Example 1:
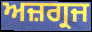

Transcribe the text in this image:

ਅਜ਼ਗ੍ਰਜ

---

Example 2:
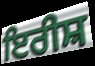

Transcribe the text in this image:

ਇਰੀਸ਼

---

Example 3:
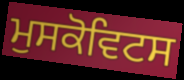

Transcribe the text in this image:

ਮੁਸਕੋਵਿਟਸ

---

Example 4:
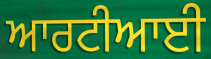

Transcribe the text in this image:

ਆਰਟੀਆਈ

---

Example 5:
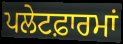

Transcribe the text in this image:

ਪਲੇਟਫ਼ਾਰਮਾਂ